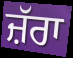
ਜ਼ੱਰਾ